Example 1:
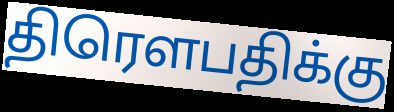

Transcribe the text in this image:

திரௌபதிக்கு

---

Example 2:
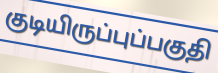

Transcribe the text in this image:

குடியிருப்புப்பகுதி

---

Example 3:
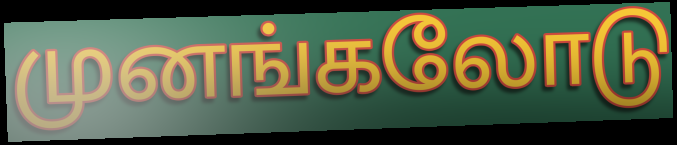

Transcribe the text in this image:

முனங்கலோடு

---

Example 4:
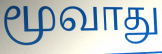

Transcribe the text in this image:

மூவாது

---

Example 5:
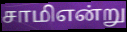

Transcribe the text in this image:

சாமிஎன்று